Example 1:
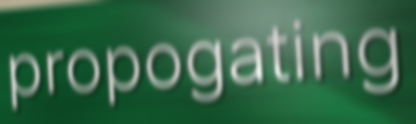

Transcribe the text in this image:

propogating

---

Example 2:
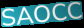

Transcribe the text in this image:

SAOCC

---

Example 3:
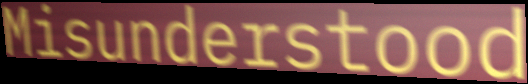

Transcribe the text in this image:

Misunderstood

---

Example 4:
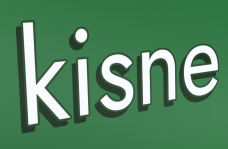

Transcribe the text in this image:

kisne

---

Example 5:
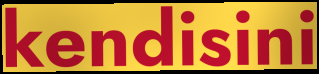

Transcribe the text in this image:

kendisini